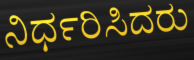
ನಿರ್ಧರಿಸಿದರು